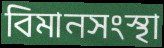
বিমানসংস্থা